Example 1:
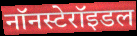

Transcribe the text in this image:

नॉनस्टेरॉइडल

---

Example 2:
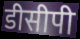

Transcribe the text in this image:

डीसीपी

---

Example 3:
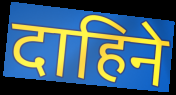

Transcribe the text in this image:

दाहिने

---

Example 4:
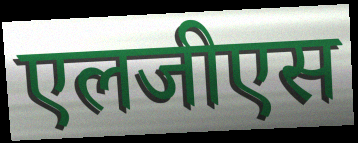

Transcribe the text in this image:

एलजीएस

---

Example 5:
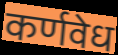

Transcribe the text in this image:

कर्णवेध